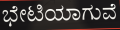
ಭೇಟಿಯಾಗುವೆ